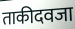
ताकीदवजा